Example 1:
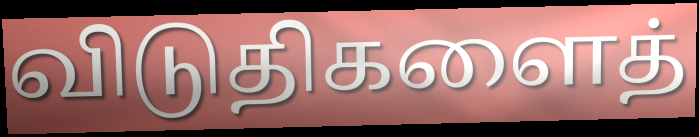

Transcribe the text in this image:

விடுதிகளைத்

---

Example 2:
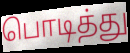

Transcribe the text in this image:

பொடித்து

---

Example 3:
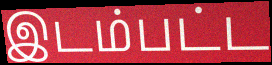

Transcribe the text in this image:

இடம்பட்ட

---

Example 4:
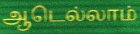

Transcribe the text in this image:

ஆடெல்லாம்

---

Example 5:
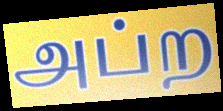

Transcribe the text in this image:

அப்ற